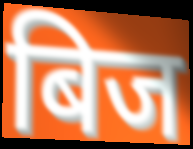
बिज